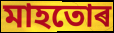
মাহতোৰ